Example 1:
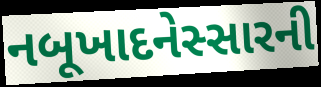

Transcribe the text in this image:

નબૂખાદનેસ્સારની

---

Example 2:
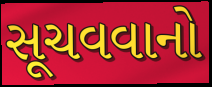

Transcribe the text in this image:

સૂચવવાનો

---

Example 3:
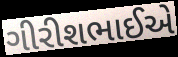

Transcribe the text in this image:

ગીરીશભાઈએ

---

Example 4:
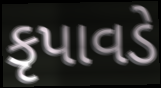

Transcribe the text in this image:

કૃપાવડે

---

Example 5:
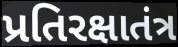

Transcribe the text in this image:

પ્રતિરક્ષાતંત્ર